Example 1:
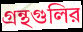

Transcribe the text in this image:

গ্রন্থগুলির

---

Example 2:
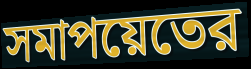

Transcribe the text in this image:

সমাপয়েতের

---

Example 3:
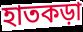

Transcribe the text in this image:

হাতকড়া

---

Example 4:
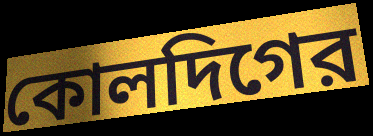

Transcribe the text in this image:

কোলদিগের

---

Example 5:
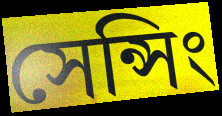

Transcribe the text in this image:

সেন্সিং